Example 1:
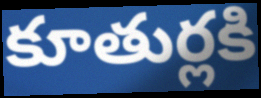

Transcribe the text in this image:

కూతుర్లకి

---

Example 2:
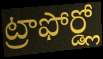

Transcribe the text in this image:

ట్రాఫోర్డ్లో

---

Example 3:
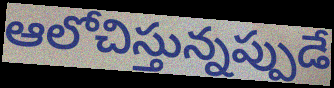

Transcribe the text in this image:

ఆలోచిస్తున్నప్పుడే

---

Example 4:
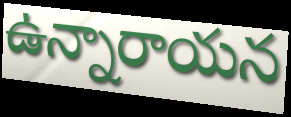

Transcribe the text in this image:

ఉన్నారాయన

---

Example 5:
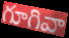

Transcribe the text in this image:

గూగివా